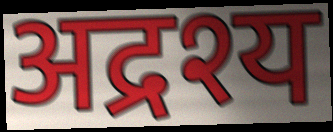
अद्रश्य